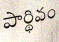
పార్థివం